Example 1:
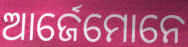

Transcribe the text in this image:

ଆର୍ଜେମୋନେ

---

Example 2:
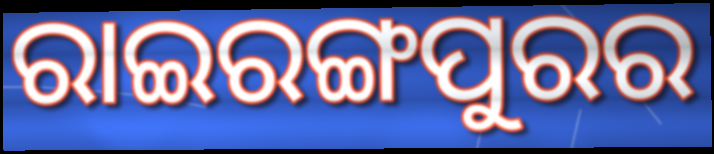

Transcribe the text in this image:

ରାଇରଙ୍ଗପୁରର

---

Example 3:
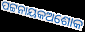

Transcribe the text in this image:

ପଟ୍ଟନାୟକଅଶୋକ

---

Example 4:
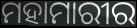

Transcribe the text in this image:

ମହାମାରୀର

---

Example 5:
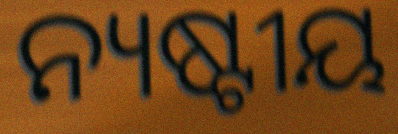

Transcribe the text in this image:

ନ୍ୟଷ୍ଟୀୟ